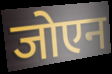
जोएन